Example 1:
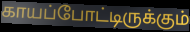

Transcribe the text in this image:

காயப்போட்டிருக்கும்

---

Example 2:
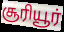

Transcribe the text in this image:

சூரியூர்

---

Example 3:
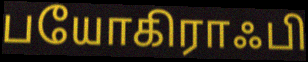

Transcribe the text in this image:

பயோகிராஃபி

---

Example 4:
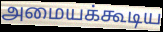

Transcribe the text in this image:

அமையக்கூடிய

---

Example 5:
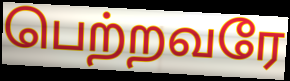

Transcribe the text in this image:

பெற்றவரே